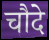
चौदे